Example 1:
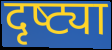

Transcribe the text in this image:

दृष्ट्या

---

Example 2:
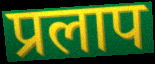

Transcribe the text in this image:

प्रलाप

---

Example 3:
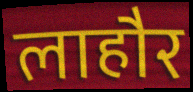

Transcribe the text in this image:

लाहौर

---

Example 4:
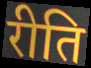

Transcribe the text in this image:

रीति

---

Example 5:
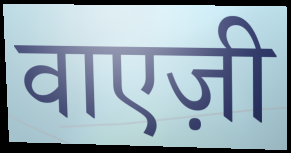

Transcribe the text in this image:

वाएज़ी